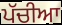
ਪੱਚੀਆ